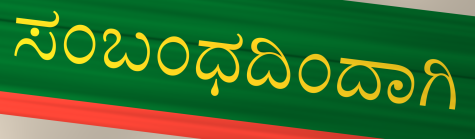
ಸಂಬಂಧದಿಂದಾಗಿ